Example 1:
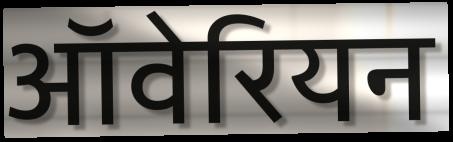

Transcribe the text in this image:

ऑवेरियन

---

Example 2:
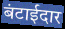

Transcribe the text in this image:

बंटाईदार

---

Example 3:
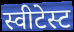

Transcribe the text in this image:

स्वीटेस्ट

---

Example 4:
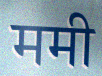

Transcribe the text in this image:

ममी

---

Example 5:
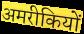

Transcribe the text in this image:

अमरीकियों